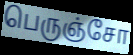
பெருஞ்சோ